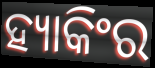
ହ୍ୟାକିଂର